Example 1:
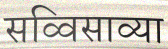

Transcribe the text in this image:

सव्विसाव्या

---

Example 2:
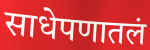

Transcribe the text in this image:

साधेपणातलं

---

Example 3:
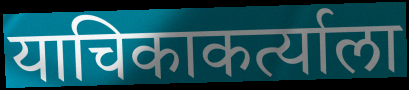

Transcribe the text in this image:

याचिकाकर्त्याला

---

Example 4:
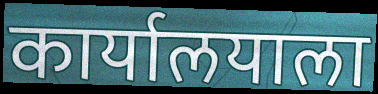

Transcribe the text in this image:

कार्यालयाला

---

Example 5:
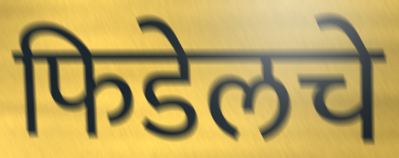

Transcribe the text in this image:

फिडेलचे